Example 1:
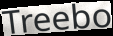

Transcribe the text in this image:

Treebo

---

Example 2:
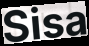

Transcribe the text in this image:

Sisa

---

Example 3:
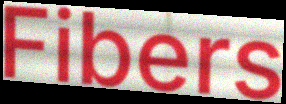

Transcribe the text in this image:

Fibers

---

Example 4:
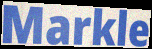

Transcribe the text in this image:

Markle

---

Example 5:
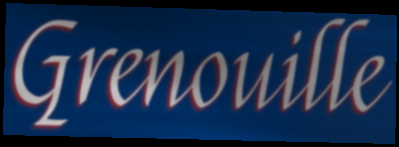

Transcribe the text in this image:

Grenouille